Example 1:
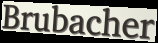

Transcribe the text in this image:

Brubacher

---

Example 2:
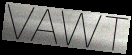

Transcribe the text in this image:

VAWT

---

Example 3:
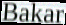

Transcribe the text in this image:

Bakar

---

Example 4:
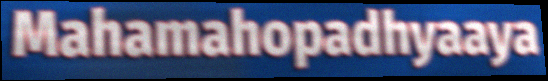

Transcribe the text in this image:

Mahamahopadhyaaya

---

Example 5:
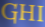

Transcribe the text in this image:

GHI